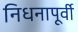
निधनापूर्वी